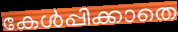
കേൾപ്പിക്കാതെ